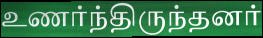
உணர்ந்திருந்தனர்